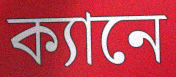
ক্যানে